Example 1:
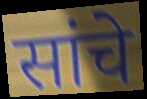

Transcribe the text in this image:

सांचे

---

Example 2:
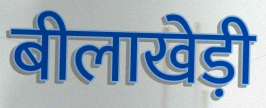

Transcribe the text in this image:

बीलाखेड़ी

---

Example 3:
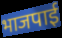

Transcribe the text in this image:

भाजपाई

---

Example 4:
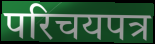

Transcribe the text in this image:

परिचयपत्र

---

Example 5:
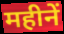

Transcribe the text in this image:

महीनें